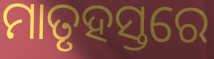
ମାତୃହସ୍ତରେ